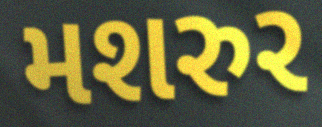
મશરુર